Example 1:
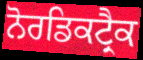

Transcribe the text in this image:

ਨੋਰਡਿਕਟ੍ਰੈਕ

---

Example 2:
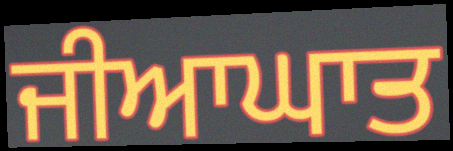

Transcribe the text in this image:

ਜੀਆਘਾਤ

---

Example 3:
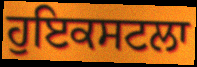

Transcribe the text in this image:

ਹੁਇਕਸਟਲਾ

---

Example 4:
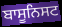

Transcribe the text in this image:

ਬਾਸੂਨਿਸਟ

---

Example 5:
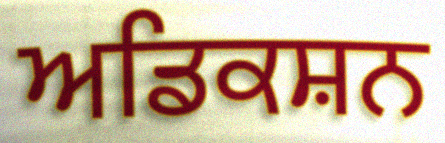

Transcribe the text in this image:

ਅਡਿਕਸ਼ਨ